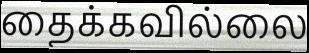
தைக்கவில்லை